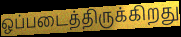
ஒப்படைத்திருக்கிறது